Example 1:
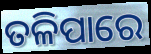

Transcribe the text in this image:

ତଳିପାରେ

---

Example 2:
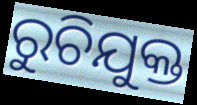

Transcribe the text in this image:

ରୁଚିଯୁକ୍ତ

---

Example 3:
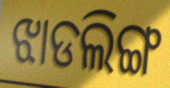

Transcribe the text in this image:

ଝାଡଲିଙ୍ଗ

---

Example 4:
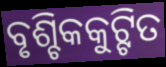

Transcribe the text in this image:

ବୃଶ୍ଚିକକୁଟ୍ଟିତ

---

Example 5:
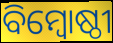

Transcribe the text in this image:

ବିମ୍ବୋଷ୍ଠୀ